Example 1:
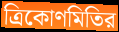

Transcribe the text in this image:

ত্রিকোণমিতির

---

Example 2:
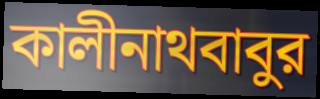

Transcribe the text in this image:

কালীনাথবাবুর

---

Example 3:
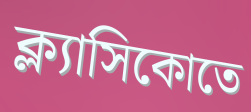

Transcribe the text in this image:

ক্ল্যাসিকোতে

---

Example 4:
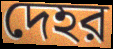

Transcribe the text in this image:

দেহর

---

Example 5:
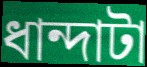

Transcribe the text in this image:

ধান্দাটা